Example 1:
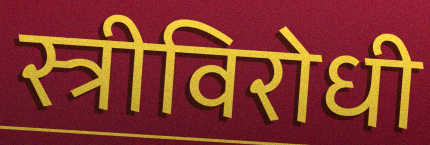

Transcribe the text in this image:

स्त्रीविरोधी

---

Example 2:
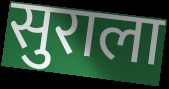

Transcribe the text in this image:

सुराला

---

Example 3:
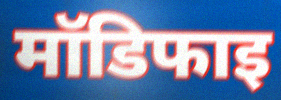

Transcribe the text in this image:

मॉडिफाइ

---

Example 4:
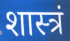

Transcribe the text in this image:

शास्त्रं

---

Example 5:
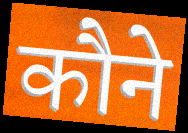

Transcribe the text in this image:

कौने